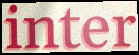
inter